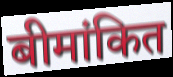
बीमांकित